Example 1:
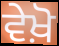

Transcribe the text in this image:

ਵੇਖ਼ੋ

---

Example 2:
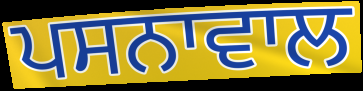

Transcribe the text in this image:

ਪਸਨਾਵਾਲ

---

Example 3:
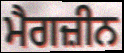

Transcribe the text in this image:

ਮੈਗਜ਼ੀਨ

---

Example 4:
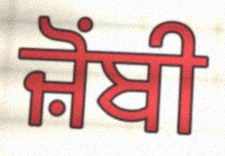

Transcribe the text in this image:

ਜ਼ੋਂਬੀ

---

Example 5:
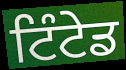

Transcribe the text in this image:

ਟਿੰਟੇਡ